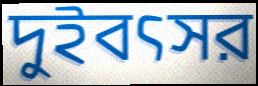
দুইবৎসর